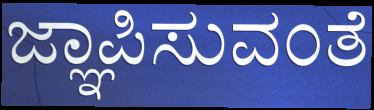
ಜ್ಞಾಪಿಸುವಂತೆ